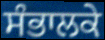
ਸੰਭਾਲਕੇ